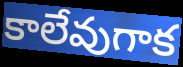
కాలేవుగాక